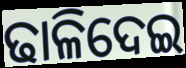
ଢାଳିଦେଇ